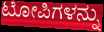
ಟೋಪಿಗಳನ್ನು